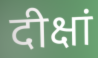
दीक्षां